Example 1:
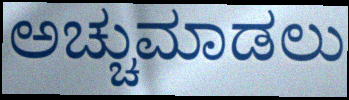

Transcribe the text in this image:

ಅಚ್ಚುಮಾಡಲು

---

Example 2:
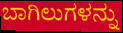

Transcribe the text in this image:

ಬಾಗಿಲುಗಳನ್ನು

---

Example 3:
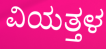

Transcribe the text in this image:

ವಿಯತ್ತಳ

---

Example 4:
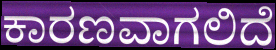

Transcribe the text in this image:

ಕಾರಣವಾಗಲಿದೆ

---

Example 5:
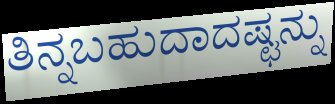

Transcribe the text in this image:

ತಿನ್ನಬಹುದಾದಷ್ಟನ್ನು